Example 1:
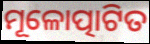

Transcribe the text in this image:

ମୂଳୋତ୍ପାଟିତ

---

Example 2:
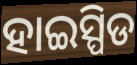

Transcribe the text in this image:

ହାଇସ୍ପିଡ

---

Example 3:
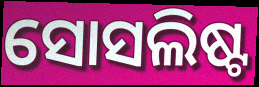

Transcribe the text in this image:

ସୋସଲିଷ୍ଟ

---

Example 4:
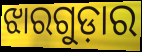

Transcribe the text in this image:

ଝାରଗୁଡ଼ାର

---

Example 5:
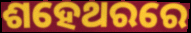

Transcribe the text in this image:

ଶହେଥରରେ